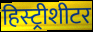
हिस्‍ट्रीशीटर